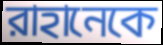
রাহানেকে